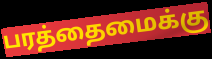
பரத்தைமைக்கு